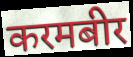
करमबीर